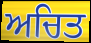
ਅਚਿਤ